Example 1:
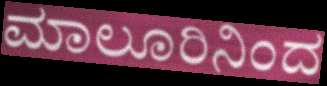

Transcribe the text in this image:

ಮಾಲೂರಿನಿಂದ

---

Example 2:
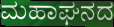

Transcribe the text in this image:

ಮಹಾಘನದ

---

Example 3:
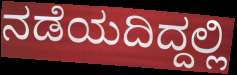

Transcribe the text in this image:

ನಡೆಯದಿದ್ದಲ್ಲಿ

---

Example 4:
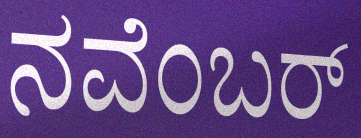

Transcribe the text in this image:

ನವೆಂಬರ್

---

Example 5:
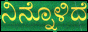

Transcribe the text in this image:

ನಿನ್ನೊಳಿದೆ